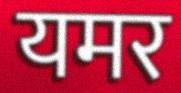
यमर